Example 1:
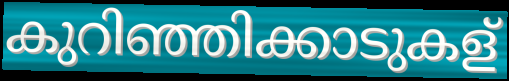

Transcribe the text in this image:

കുറിഞ്ഞിക്കാടുകള്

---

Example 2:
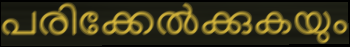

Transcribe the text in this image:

പരിക്കേൽക്കുകയും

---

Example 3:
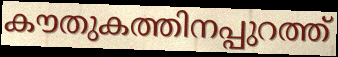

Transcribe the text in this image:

കൗതുകത്തിനപ്പുറത്ത്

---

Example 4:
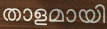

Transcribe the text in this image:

താളമായി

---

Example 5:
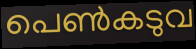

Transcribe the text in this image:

പെൺകടുവ